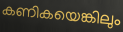
കണികയെങ്കിലും